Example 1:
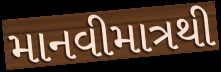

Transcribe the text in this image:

માનવીમાત્રથી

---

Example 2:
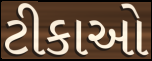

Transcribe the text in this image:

ટીકાઓ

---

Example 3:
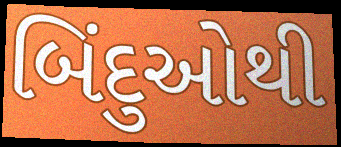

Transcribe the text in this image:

બિંદુઓથી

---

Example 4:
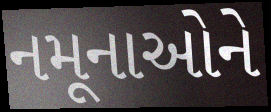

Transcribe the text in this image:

નમૂનાઓને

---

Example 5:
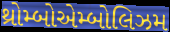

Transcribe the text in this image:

થ્રોમ્બોએમ્બોલિઝમ